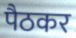
पैठकर